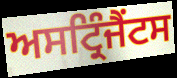
ਅਸਟ੍ਰਿੰਜੈਂਟਸ